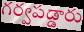
గర్వపడ్డారు